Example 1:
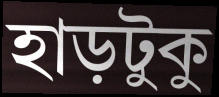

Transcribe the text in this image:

হাড়টুকু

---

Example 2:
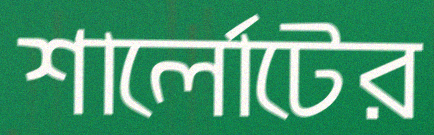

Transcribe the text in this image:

শার্লোটের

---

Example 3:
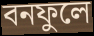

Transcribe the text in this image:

বনফুলে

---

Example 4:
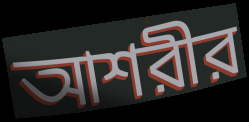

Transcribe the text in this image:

আশরীর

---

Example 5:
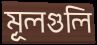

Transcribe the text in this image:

মূলগুলি